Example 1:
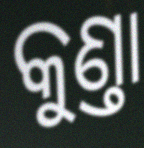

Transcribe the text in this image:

କୁଣ୍ତା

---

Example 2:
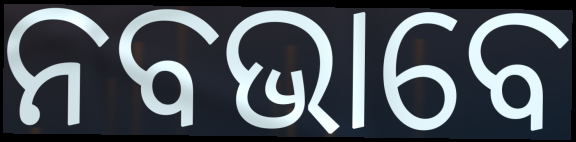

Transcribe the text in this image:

ନବଭାବେ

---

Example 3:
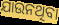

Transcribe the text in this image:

ଯାଉନଥିବା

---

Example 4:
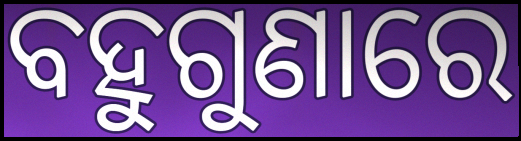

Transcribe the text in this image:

ବହୁଗୁଣାରେ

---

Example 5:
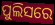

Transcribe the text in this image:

ପୁଲିସରେ